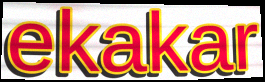
ekakar